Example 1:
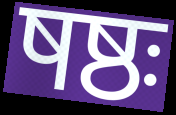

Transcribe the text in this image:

षष्ठः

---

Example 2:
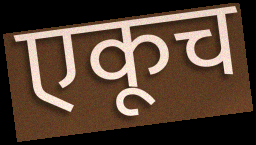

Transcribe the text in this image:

एकूच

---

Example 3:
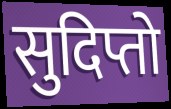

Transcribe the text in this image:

सुदिप्तो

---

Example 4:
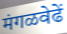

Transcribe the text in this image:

मंगळवेढें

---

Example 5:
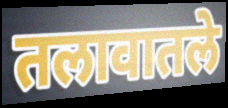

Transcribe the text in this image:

तलावातले